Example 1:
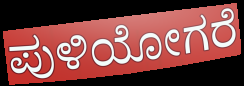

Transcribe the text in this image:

ಪುಳಿಯೋಗರೆ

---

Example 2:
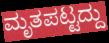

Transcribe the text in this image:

ಮೃತಪಟ್ಟದ್ದು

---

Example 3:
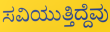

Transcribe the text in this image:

ಸವಿಯುತ್ತಿದ್ದೆವು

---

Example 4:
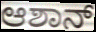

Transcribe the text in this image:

ಆಶಾನ್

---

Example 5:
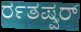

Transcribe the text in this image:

ರ್ರತಷ್ವರ್